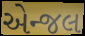
એન્જલ